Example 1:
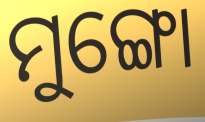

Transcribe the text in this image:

ମୁଙ୍ଗୋ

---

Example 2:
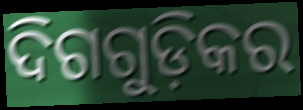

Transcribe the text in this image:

ଦିଗଗୁଡ଼ିକର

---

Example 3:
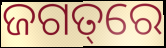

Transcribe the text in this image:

ଜଗତ୍‌ରେ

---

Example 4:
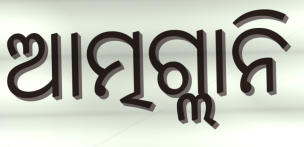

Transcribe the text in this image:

ଆତ୍ମଗ୍ଲାନି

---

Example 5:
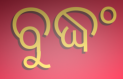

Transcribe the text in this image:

ବୁଦ୍ଧଂ